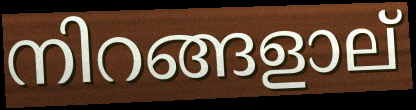
നിറങ്ങളാല്